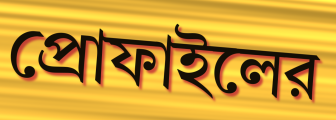
প্রোফাইলের